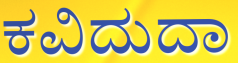
ಕವಿದುದಾ